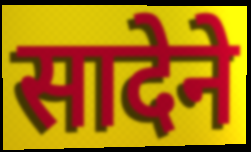
सादेने